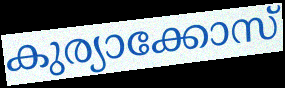
കുര്യാക്കോസ്